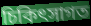
চিকিৎসাগত